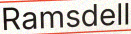
Ramsdell